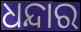
ଧନ୍ଦାର